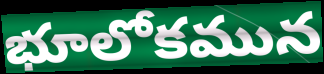
భూలోకమున